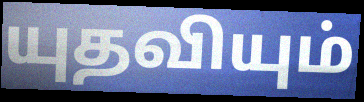
யுதவியும்